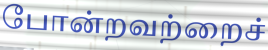
போன்றவற்றைச்